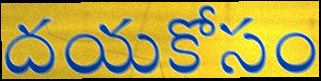
దయకోసం